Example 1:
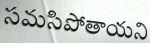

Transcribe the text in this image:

సమసిపోతాయని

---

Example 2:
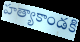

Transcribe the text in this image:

హత్యాకాండకి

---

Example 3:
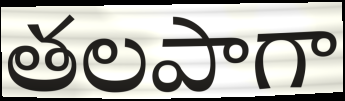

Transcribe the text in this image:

తలపాగా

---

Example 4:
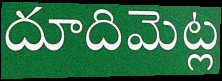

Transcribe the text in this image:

దూదిమెట్ల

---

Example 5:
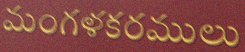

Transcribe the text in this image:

మంగళకరములు